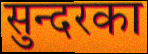
सुन्दरका